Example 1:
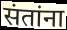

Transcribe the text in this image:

संतांना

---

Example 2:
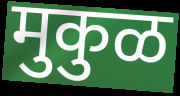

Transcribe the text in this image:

मुकुळ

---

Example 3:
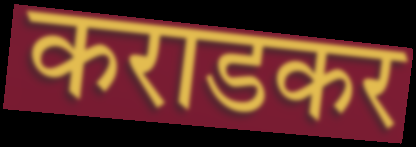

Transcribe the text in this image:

कराडकर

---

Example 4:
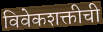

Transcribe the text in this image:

विवेकशक्तीची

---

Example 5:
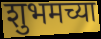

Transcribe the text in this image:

शुभमच्या